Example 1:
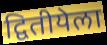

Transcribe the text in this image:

द्वितीयेला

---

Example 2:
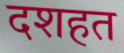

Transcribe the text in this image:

दशहत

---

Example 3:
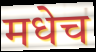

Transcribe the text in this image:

मधेच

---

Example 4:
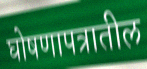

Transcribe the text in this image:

घोषणापत्रातील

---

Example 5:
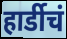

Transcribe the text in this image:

हार्डीचं